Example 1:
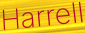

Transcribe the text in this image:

Harrell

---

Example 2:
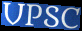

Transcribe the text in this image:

UPSC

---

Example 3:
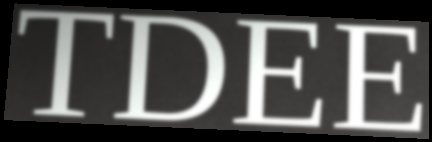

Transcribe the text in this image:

TDEE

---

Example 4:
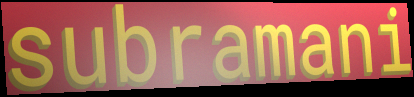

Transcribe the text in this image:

subramani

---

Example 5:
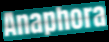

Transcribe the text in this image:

Anaphora